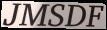
JMSDF